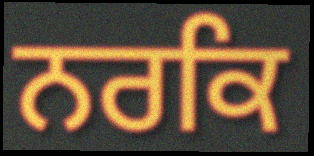
ਨਰਕਿ